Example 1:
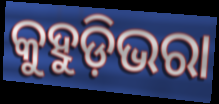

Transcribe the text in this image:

କୁହୁଡ଼ିଭରା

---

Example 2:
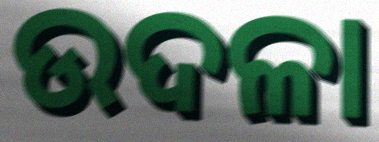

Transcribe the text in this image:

ଉଦଳା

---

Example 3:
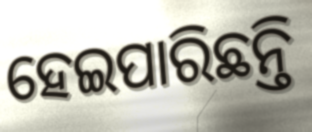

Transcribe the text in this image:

ହେଇପାରିଛନ୍ତି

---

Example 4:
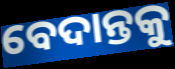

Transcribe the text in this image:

ବେଦାନ୍ତକୁ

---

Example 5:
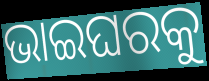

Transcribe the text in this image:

ଭାଇଘରକୁ